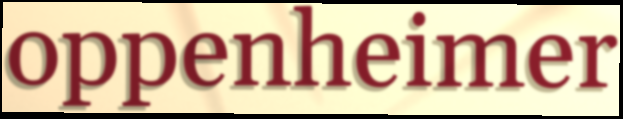
oppenheimer